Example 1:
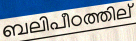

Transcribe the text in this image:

ബലിപീഠത്തില്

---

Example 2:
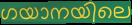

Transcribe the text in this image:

ഗയാനയിലെ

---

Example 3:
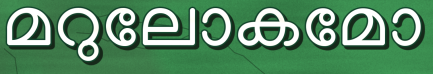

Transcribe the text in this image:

മറുലോകമോ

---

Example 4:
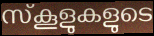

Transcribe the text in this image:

സ്‌കൂളുകളുടെ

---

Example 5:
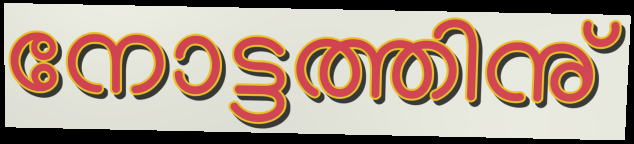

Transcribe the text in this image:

നോട്ടത്തിനു്